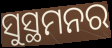
ସୁସ୍ଥମନର